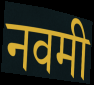
नवमी